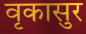
वृकासुर